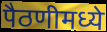
पैठणीमध्ये